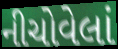
નીચોવેલાં